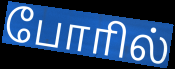
போரில்